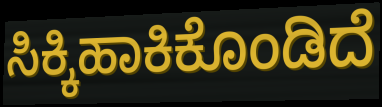
ಸಿಕ್ಕಿಹಾಕಿಕೊಂಡಿದೆ